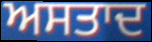
ਅਸਤਾਦ